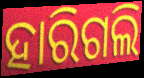
ହାରିଗଲି